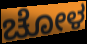
ಚೋಳ